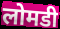
लोमडी